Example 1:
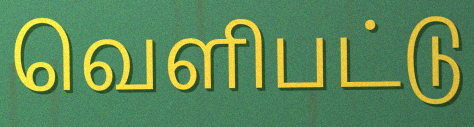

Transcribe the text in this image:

வெளிபட்டு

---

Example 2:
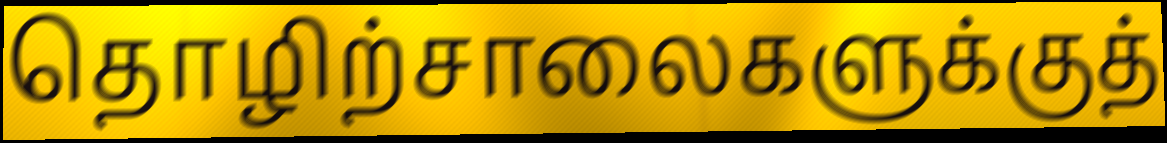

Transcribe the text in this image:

தொழிற்சாலைகளுக்குத்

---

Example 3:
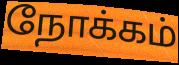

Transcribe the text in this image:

நோக்கம்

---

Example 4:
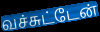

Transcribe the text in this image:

வச்சுட்டேன்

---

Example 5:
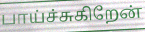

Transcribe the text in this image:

பாய்ச்சுகிறேன்